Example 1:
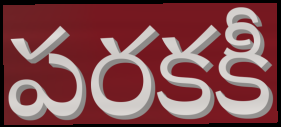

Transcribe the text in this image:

పరకకీ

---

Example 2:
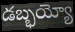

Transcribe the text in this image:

డబ్భయ్యో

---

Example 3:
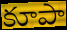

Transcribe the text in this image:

కూపా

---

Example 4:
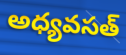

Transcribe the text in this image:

అధ్యవసత్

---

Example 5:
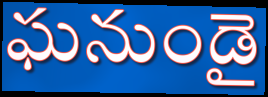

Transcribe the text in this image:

ఘనుండై